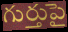
గుర్తుపై